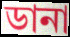
ডানা